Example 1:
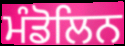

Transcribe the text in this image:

ਮੰਡੋਲਿਨ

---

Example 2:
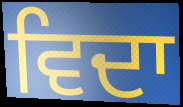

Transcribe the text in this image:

ਵਿਦਾ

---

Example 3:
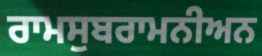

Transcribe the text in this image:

ਰਾਮਸੁਬਰਾਮਨੀਅਨ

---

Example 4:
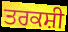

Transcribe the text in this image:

ਤਰਕਸ਼ੀ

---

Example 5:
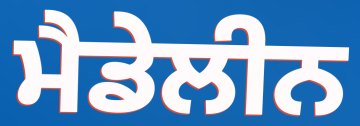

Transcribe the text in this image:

ਮੈਡੇਲੀਨ